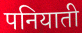
पनियाती